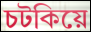
চটকিয়ে